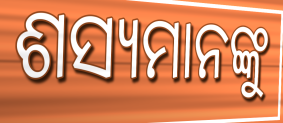
ଶସ୍ୟମାନଙ୍କୁ